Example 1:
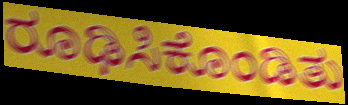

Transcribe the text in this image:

ರೂಢಿಸಿಕೊಂಡಿತು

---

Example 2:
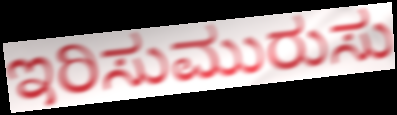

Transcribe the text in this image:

ಇರಿಸುಮುರುಸು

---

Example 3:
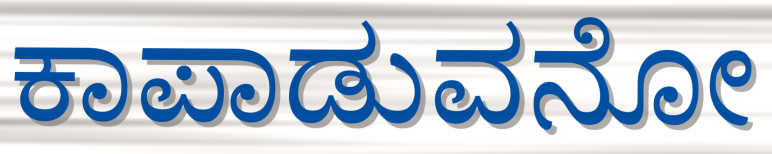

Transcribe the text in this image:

ಕಾಪಾಡುವನೋ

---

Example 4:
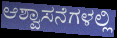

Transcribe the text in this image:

ಆಶ್ವಾಸನೆಗಳಲ್ಲಿ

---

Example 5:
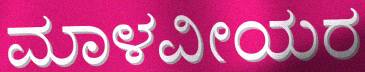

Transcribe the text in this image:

ಮಾಳವೀಯರ